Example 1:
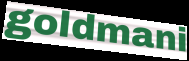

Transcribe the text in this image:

goldmani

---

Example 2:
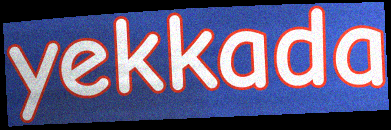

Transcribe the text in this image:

yekkada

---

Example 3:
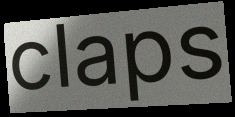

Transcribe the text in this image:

claps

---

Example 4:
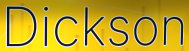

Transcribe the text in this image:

Dickson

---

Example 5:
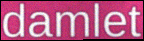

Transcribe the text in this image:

damlet